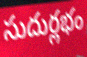
సుదుర్లభం